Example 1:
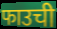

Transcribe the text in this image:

फाउची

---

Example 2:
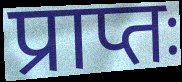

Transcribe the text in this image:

प्राप्तः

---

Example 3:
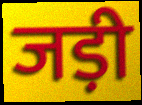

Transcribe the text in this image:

जड़ी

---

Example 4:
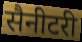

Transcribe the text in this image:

सैनीटरी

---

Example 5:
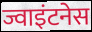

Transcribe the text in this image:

ज्वाइंटनेस